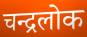
चन्द्रलोक